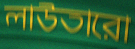
লাউতারো